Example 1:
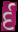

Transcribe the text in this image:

ર્દ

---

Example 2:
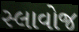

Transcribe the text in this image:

સ્લાવોજ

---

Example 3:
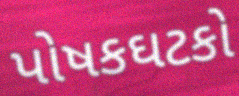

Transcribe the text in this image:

પોષકઘટકો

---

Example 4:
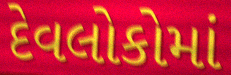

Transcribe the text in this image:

દેવલોકોમાં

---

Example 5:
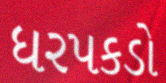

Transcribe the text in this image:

ધરપકડો